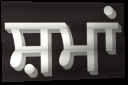
ਸ਼ਮਾਂ